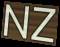
NZ